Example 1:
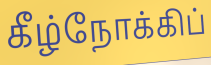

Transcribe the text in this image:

கீழ்நோக்கிப்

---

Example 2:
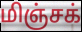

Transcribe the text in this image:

மிஞ்சக்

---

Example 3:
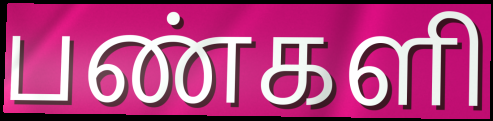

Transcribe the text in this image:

பண்களி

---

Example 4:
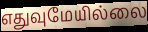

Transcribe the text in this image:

எதுவுமேயில்லை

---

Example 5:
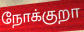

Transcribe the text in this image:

நோக்குறா